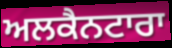
ਅਲਕੈਨਟਾਰਾ